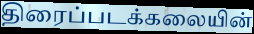
திரைப்படக்கலையின்